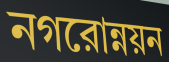
নগরোন্নয়ন